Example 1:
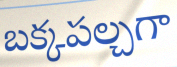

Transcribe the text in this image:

బక్కపల్చగా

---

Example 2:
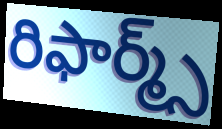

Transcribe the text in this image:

రిఫార్మ్స్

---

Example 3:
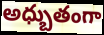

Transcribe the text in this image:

అధ్బుతంగా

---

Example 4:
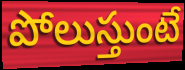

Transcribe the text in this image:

పోలుస్తుంటే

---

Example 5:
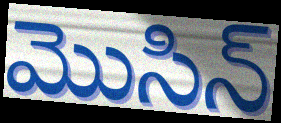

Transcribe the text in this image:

మొసిన్